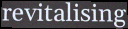
revitalising